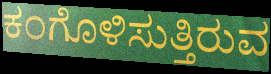
ಕಂಗೊಳಿಸುತ್ತಿರುವ